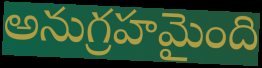
అనుగ్రహమైంది